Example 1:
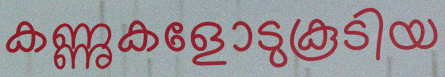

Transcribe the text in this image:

കണ്ണുകളോടുകൂടിയ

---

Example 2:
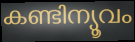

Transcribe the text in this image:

കണ്ടിന്യൂവം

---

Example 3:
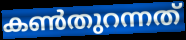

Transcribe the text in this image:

കൺതുറന്നത്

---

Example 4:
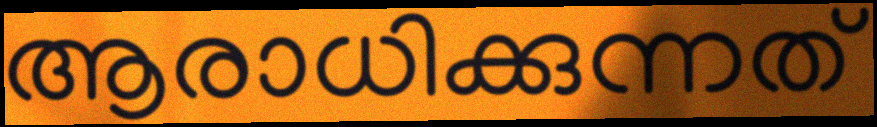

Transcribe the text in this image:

ആരാധിക്കുന്നത്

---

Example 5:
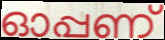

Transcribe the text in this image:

ഓപ്പണ്